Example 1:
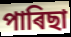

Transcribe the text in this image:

পাৰিছা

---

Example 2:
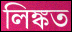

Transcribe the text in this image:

লিঙ্কত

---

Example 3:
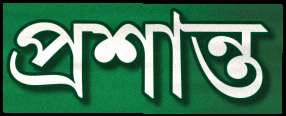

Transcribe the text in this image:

প্ৰশান্ত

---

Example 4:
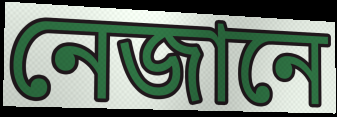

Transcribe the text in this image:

নেজানে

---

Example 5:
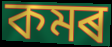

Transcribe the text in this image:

কমৰ